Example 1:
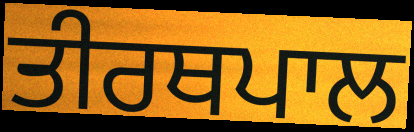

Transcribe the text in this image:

ਤੀਰਥਪਾਲ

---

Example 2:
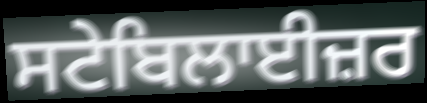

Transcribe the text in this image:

ਸਟੇਬਿਲਾਈਜ਼ਰ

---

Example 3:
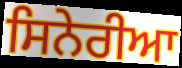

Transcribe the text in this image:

ਸਿਨੇਰੀਆ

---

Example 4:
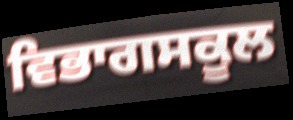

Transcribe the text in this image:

ਵਿਭਾਗਸਕੂਲ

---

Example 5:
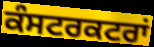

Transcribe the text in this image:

ਕੰਸਟਰਕਟਰਾਂ